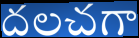
దలచగా